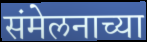
संमेलनाच्या